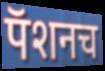
पॅशनच